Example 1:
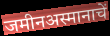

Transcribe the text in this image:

जमीनअस्मानाचें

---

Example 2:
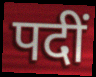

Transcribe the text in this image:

पदीं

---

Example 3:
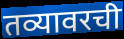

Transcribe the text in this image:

तव्यावरची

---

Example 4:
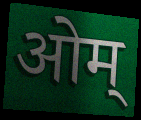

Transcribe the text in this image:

ओम्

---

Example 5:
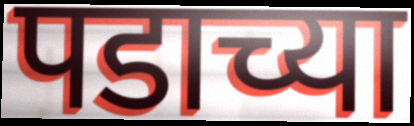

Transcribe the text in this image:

पडाच्या